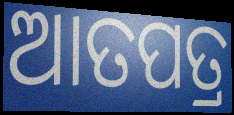
ଆତପତ୍ର